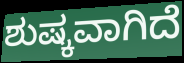
ಶುಷ್ಕವಾಗಿದೆ